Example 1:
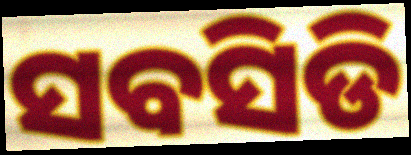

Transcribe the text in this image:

ସବସିଡି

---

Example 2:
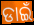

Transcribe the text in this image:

ଡାଇଁ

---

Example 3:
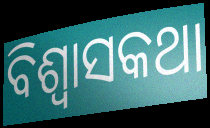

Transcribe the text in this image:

ବିଶ୍ଵାସକଥା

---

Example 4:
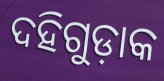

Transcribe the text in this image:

ଦହିଗୁଡ଼ାକ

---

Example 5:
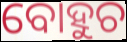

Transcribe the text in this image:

ବୋହୁଚ